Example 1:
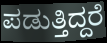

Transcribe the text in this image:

ಪಡುತ್ತಿದ್ದರೆ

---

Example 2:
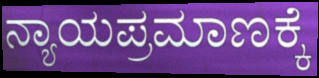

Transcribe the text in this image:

ನ್ಯಾಯಪ್ರಮಾಣಕ್ಕೆ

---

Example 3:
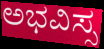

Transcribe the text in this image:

ಅಭವಿಸ್ಸ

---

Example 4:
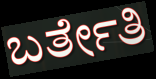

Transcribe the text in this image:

ಬರ್ತೇತಿ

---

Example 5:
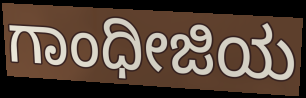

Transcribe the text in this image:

ಗಾಂಧೀಜಿಯ